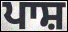
ਪਾਸ਼